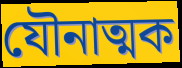
যৌনাত্মক